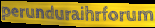
perunduraihrforum